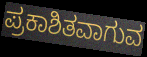
ಪ್ರಕಾಶಿತವಾಗುವ